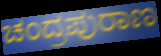
ಚಂದ್ರಪುರಾಣ